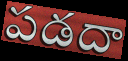
పడదా